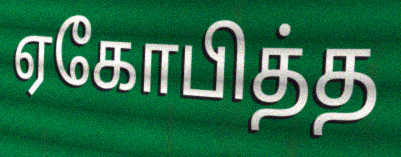
ஏகோபித்த